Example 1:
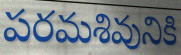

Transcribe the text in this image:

పరమశివునికి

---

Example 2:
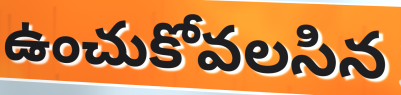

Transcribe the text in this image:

ఉంచుకోవలసిన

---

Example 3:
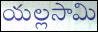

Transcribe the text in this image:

యల్లసామి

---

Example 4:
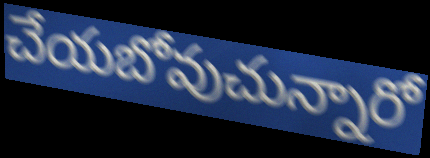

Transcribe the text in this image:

చేయబోవుచున్నారో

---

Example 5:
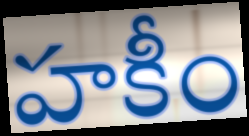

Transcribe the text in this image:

హకీం